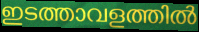
ഇടത്താവളത്തിൽ